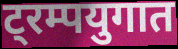
ट्रम्पयुगात